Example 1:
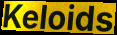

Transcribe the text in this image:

Keloids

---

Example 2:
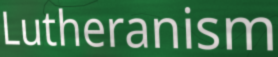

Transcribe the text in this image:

Lutheranism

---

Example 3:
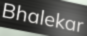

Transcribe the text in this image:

Bhalekar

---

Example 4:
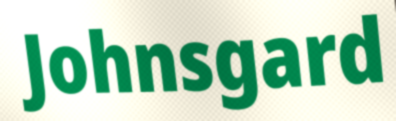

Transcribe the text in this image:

Johnsgard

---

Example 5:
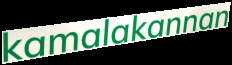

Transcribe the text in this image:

kamalakannan